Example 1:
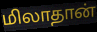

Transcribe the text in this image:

மிலாதான்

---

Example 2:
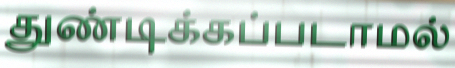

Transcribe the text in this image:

துண்டிக்கப்படாமல்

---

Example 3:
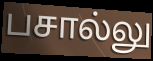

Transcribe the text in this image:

பசால்லு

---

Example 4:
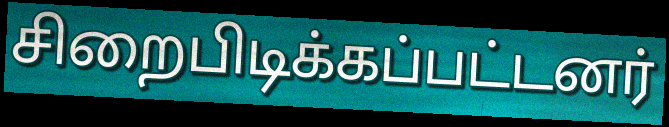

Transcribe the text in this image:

சிறைபிடிக்கப்பட்டனர்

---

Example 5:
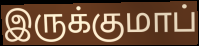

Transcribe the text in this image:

இருக்குமாப்